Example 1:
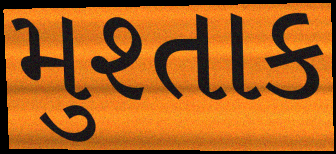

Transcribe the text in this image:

મુશ્તાક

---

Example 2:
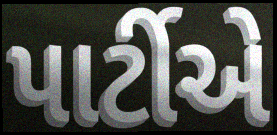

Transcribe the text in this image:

પાર્ટીએ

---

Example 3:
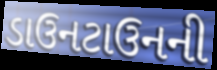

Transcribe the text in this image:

ડાઉનટાઉનની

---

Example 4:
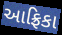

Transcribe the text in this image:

આફ્રિકા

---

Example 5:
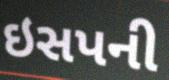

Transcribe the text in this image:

ઇસપની